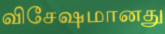
விசேஷமானது